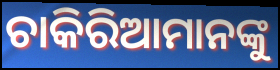
ଚାକିରିଆମାନଙ୍କୁ